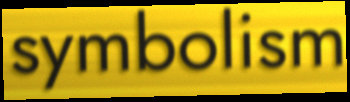
symbolism